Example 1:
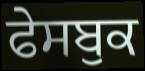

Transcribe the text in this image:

ਫੇਸਬੁਕ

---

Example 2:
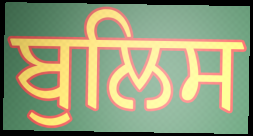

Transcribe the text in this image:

ਬੁਲਿਸ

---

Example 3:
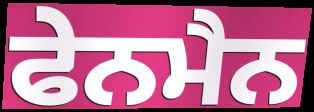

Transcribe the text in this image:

ਫੇਨਮੈਨ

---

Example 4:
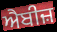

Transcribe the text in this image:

ਐਬੀਜ਼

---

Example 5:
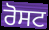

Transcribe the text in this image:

ਰੋਸਟ